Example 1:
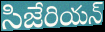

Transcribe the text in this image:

సిజేరియన్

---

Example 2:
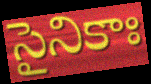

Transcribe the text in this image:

సైనికాః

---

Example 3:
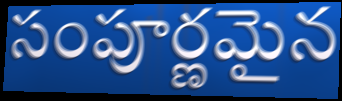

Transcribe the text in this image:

సంపూర్ణమైన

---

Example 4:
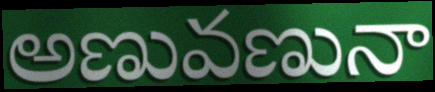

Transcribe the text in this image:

అణువణునా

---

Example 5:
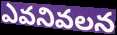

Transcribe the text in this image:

ఎవనివలన